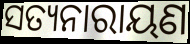
ସତ୍ୟନାରାୟଣ